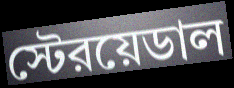
স্টেরয়েডাল